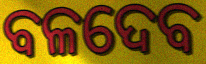
ବଳଦେବ